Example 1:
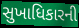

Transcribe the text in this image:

સુખાધિકારની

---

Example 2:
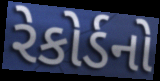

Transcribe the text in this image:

રેકોર્ડનો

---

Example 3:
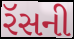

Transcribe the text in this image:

રૅસની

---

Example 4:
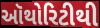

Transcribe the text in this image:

ઑથોરિટીથી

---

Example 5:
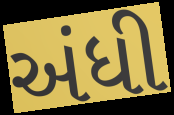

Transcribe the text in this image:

અંધી